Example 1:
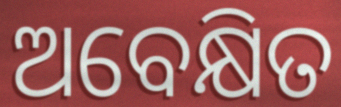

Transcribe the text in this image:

ଅବେକ୍ଷିତ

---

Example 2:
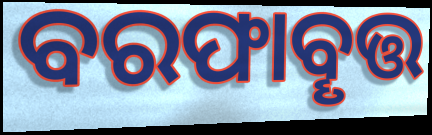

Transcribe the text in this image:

ବରଫାବୄତ୍ତ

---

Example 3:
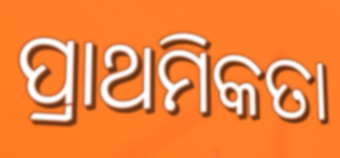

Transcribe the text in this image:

ପ୍ରାଥମିକତା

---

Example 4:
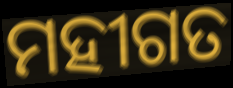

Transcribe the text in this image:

ମହୀଗତ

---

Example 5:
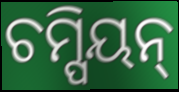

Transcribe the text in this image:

ଚମ୍ପିୟନ୍